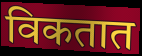
विकतात